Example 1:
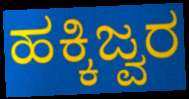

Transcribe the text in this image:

ಹಕ್ಕಿಜ್ವರ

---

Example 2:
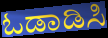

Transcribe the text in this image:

ಓಡಾಡಿಸಿ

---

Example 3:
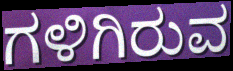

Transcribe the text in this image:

ಗಳಿಗಿರುವ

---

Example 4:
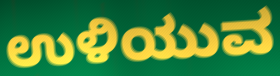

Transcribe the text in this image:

ಉಳಿಯುವ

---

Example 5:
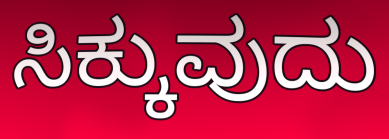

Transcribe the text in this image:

ಸಿಕ್ಕುವುದು